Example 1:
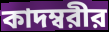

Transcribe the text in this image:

কাদম্বরীর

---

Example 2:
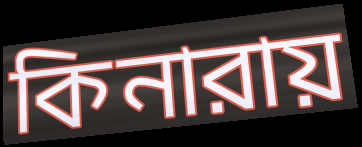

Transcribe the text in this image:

কিনারায়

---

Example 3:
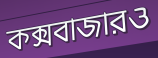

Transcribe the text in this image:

কক্সবাজারও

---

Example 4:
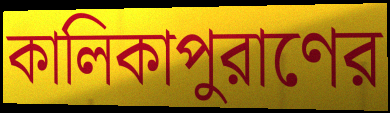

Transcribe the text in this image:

কালিকাপুরাণের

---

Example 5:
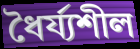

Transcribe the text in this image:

ধৈর্য্যশীল